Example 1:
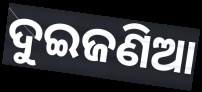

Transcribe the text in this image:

ଦୁଇଜଣିଆ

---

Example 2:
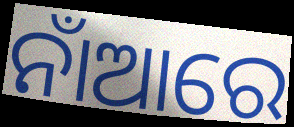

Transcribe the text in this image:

ନାଁଆରେ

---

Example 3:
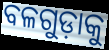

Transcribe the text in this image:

ବଳଗୁଡ଼ାକୁ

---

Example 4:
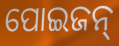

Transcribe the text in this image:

ପୋଇଜନ୍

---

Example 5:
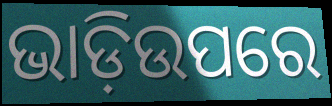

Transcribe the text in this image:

ଭାଡ଼ିଉପରେ